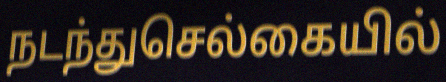
நடந்துசெல்கையில்